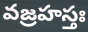
వజ్రహస్తః